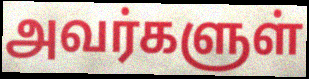
அவர்களுள்